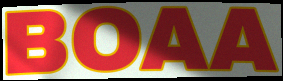
BOAA